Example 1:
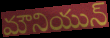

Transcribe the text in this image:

మౌనియున్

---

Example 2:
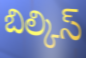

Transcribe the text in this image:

బిల్కిస్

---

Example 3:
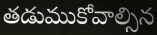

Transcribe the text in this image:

తడుముకోవాల్సిన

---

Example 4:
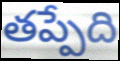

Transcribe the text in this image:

తప్పేది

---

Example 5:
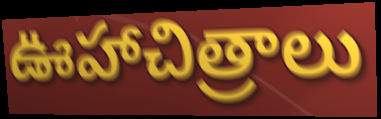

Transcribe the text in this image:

ఊహాచిత్రాలు